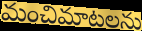
మంచిమాటలను